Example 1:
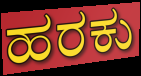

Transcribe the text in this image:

ಹರಕು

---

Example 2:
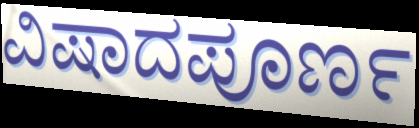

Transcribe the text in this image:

ವಿಷಾದಪೂರ್ಣ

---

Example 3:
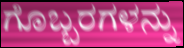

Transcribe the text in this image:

ಗೊಬ್ಬರಗಳನ್ನು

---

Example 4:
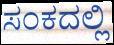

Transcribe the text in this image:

ಸಂಕದಲ್ಲಿ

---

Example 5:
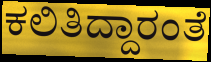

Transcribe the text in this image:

ಕಲಿತಿದ್ದಾರಂತೆ